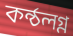
কন্ঠলগ্ন